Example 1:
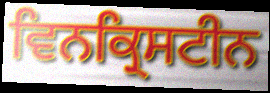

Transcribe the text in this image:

ਵਿਨਕ੍ਰਿਸਟੀਨ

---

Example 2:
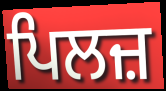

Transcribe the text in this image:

ਪਿਲਜ਼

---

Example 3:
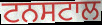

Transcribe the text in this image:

ਟਨਸਟਾਲ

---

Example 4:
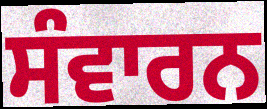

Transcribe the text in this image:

ਸੰਵਾਰਨ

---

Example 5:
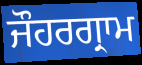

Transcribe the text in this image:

ਜੌਹਰਗ੍ਰਾਮ